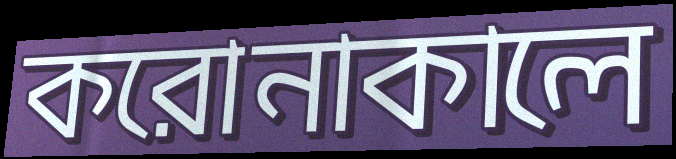
করোনাকালে